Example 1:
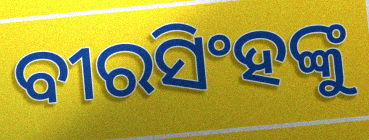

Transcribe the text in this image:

ବୀରସିଂହଙ୍କୁ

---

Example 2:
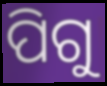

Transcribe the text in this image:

ପିଗୁ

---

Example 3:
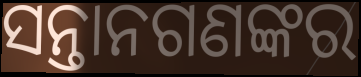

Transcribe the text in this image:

ସନ୍ତାନଗଣଙ୍କର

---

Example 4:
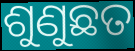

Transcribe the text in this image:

ଶୁଣୁଛତ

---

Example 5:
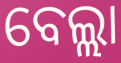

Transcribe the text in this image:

ବେଲ୍ଲା